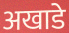
अखाडे